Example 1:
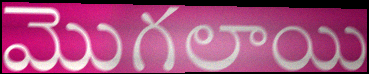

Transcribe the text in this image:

మొగలాయి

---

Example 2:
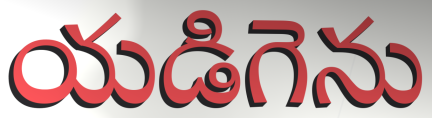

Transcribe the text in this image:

యడిగెను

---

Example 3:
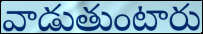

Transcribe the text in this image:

వాడుతుంటారు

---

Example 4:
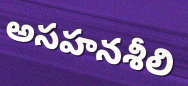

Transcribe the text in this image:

అసహనశీలి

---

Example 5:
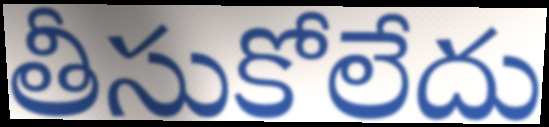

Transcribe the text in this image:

తీసుకోలేదు